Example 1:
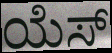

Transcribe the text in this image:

ಯೆಸ್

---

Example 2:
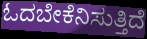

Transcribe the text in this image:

ಓದಬೇಕೆನಿಸುತ್ತಿದೆ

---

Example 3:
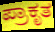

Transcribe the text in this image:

ಪ್ರಾಕೃತ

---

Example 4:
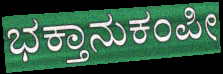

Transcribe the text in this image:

ಭಕ್ತಾನುಕಂಪೀ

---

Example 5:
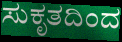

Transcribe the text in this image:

ಸುಕೃತದಿಂದ